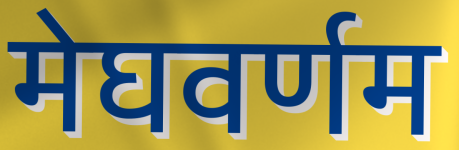
मेघवर्णम